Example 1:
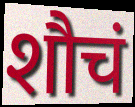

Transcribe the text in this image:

शौचं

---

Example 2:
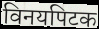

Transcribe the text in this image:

विनयपिटक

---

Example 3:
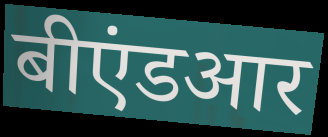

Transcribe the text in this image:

बीएंडआर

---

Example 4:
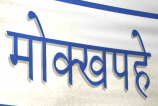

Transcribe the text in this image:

मोक्खपहे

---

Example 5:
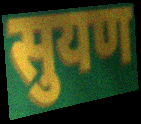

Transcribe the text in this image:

सुयण